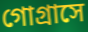
গোগ্রাসে